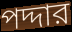
পদ্দার